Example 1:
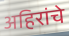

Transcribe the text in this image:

अहिरांचे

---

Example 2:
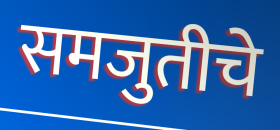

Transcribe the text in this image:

समजुतीचे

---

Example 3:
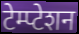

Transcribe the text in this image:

टेम्प्टेशन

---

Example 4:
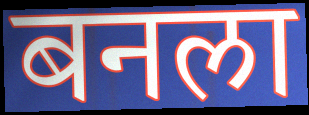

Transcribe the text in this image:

बनला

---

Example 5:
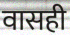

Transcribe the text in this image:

वासही